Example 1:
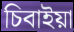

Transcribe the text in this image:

চিবাইয়া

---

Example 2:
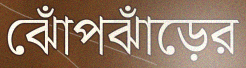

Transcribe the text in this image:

ঝোঁপঝাঁড়ের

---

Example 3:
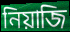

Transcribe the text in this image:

নিয়াজি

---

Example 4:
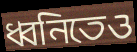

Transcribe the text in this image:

ধ্বনিতেও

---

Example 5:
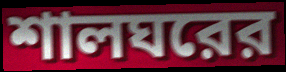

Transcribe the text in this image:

শালঘরের